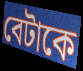
বেটাকে